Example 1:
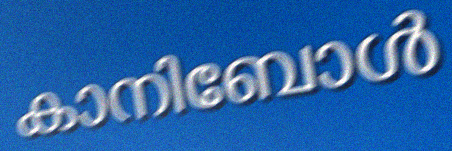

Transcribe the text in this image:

കാനിബോൾ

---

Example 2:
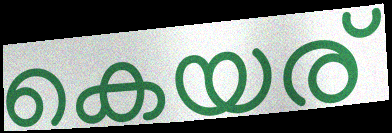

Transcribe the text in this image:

കെയര്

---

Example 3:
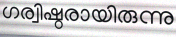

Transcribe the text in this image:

ഗര്വിഷ്ഠരായിരുന്നു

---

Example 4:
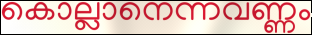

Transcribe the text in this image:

കൊല്ലാനെന്നവണ്ണം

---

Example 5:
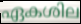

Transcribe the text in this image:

ഏകശില